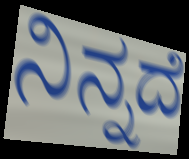
ನಿನ್ನದೆ